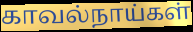
காவல்நாய்கள்